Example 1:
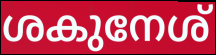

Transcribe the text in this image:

ശകുനേശ്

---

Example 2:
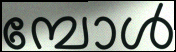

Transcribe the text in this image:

മ്പോൾ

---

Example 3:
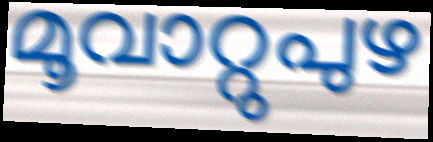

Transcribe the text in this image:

മൂവാറ്റുപുഴ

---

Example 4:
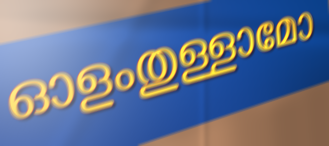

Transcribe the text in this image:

ഓളംതുള്ളാമോ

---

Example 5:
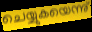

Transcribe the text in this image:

ചെയ്യുകയെന്നു്